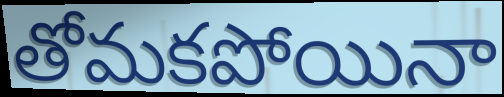
తోమకపోయినా